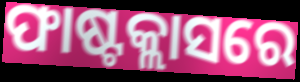
ଫାଷ୍ଟକ୍ଲାସରେ